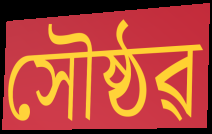
সৌষ্ঠৱ